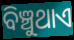
ବିଞ୍ଚୁଥାଏ